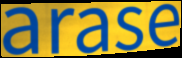
arase